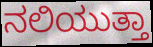
ನಲಿಯುತ್ತಾ